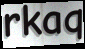
rkaq